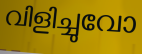
വിളിച്ചുവോ